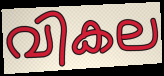
വികല